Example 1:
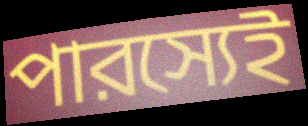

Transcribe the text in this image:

পারস্যেই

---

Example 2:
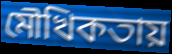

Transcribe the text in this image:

মৌখিকতায়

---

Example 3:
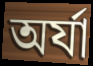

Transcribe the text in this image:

অর্যা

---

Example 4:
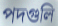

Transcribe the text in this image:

পদগুলি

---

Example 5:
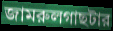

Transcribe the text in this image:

জামরুলগাছটার